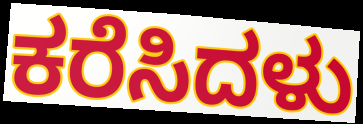
ಕರೆಸಿದಳು